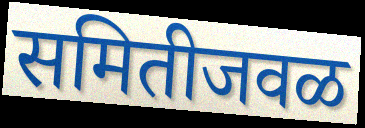
समितीजवळ